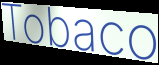
Tobaco